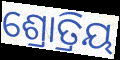
ଶ୍ରୋତ୍ରିୟ